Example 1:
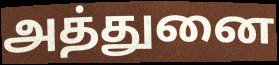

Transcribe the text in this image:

அத்துனை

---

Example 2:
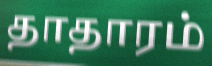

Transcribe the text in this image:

தாதாரம்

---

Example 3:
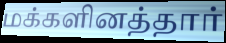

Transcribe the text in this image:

மக்களினத்தார்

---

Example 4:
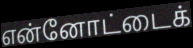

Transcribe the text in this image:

என்னோட்டைக்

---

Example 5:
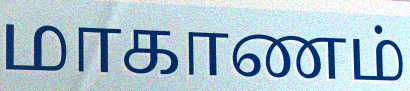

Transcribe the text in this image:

மாகாணம்